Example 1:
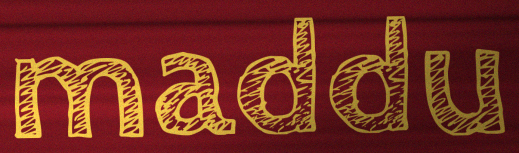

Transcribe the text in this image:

maddu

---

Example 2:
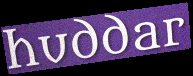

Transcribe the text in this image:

huddar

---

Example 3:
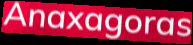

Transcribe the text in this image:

Anaxagoras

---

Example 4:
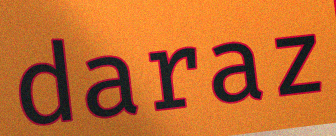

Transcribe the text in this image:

daraz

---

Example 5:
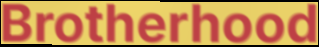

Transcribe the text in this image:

Brotherhood